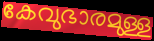
കേവുഭാരമുള്ള